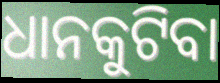
ଧାନକୁଟିବା